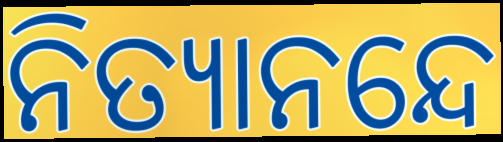
ନିତ୍ୟାନନ୍ଦେ